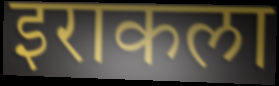
इराकला